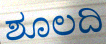
ಶೂಲದಿ